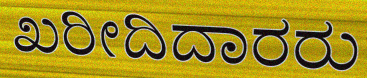
ಖರೀದಿದಾರರು